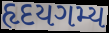
હૃદયગમ્ય